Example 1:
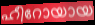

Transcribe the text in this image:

ഹീറോയായ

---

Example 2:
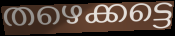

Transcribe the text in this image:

തഴെക്കട്ടെ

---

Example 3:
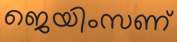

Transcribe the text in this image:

ജെയിംസണ്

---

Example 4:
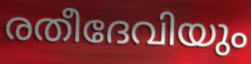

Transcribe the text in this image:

രതീദേവിയും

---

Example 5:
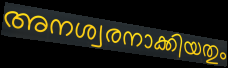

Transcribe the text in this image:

അനശ്വരനാക്കിയതും